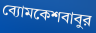
ব্যোমকেশবাবুর